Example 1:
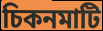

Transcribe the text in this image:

চিকনমাটি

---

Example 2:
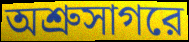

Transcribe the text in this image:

অশ্রুসাগরে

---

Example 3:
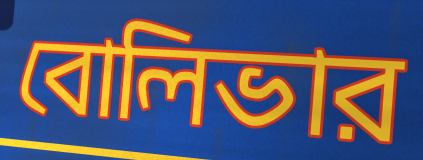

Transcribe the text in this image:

বোলিভার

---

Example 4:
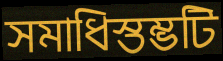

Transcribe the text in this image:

সমাধিস্তম্ভটি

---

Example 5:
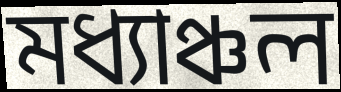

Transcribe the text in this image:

মধ্যাঞ্চল